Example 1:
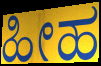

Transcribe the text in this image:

ಹೀಹ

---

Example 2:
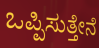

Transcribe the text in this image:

ಒಪ್ಪಿಸುತ್ತೇನೆ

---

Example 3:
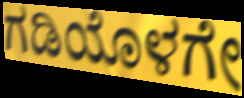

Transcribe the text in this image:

ಗಡಿಯೊಳಗೇ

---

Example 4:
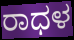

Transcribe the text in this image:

ರಾಧಳ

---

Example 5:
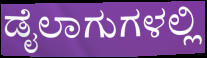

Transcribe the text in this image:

ಡೈಲಾಗುಗಳಲ್ಲಿ